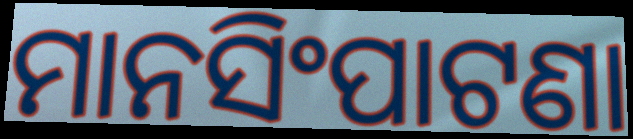
ମାନସିଂପାଟଣା